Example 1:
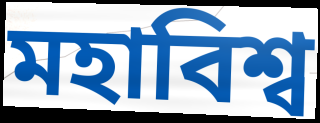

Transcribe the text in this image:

মহাবিশ্ব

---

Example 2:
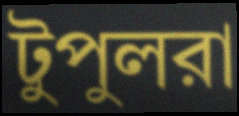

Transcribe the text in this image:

টুপুলরা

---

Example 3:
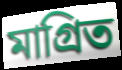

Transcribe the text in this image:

মাগ্রিত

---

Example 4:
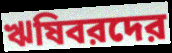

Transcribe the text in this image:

ঋষিবরদের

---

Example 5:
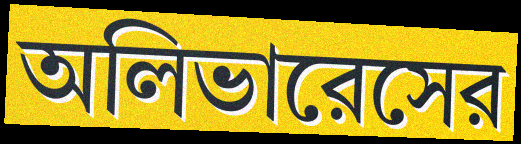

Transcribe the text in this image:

অলিভারেসের